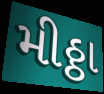
મીઠ્ઠા